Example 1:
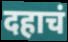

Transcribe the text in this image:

दहाचं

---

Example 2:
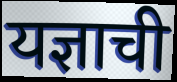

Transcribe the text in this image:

यज्ञाची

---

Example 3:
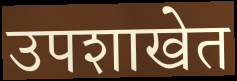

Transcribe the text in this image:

उपशाखेत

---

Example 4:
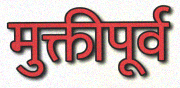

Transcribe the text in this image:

मुक्तीपूर्व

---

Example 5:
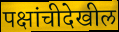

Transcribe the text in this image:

पक्षांचीदेखील